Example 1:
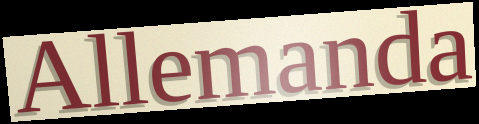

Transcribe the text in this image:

Allemanda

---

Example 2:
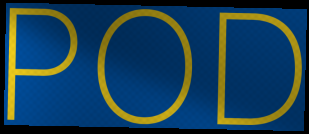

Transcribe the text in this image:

POD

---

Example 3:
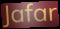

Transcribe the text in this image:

Jafar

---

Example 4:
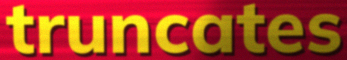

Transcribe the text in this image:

truncates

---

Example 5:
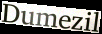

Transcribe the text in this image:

Dumezil